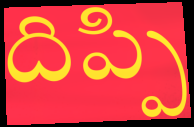
దిప్పి